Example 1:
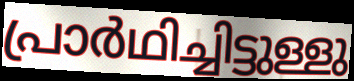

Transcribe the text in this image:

പ്രാർഥിച്ചിട്ടുള്ളു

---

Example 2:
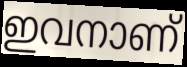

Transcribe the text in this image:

ഇവനാണ്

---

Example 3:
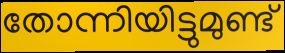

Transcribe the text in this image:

തോന്നിയിട്ടുമുണ്ട്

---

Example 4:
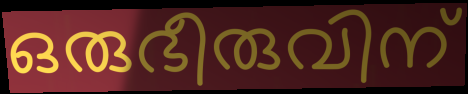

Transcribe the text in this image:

ഒരുഭീരുവിന്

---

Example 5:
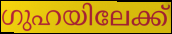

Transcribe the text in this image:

ഗുഹയിലേക്ക്